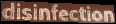
disinfection